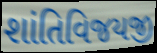
શાંતિવિજયજી